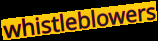
whistleblowers